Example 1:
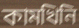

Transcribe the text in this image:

কামখিনি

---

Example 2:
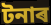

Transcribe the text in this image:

টনাৰ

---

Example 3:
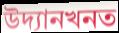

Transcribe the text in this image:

উদ্যানখনত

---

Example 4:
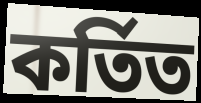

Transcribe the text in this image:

কৰ্তিত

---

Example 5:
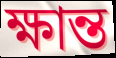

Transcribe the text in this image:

ক্ষান্ত